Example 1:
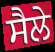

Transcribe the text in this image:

ਸੈਲੇ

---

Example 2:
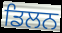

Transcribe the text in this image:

ਡਿਲਨ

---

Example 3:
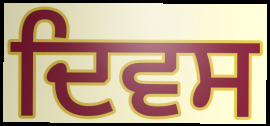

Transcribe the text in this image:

ਦਿਵਸ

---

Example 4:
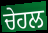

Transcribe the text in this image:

ਚੇਹਲ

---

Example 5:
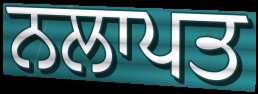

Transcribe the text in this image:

ਨਲਾਪਤ